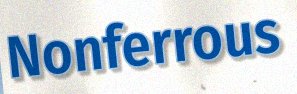
Nonferrous